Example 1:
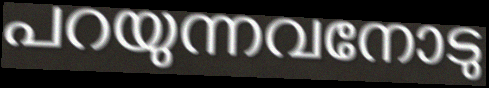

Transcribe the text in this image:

പറയുന്നവനോടു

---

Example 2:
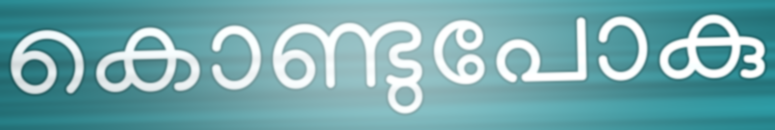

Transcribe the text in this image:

കൊണ്ടുപോകു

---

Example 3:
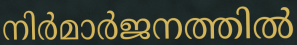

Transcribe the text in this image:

നിർമാർജനത്തിൽ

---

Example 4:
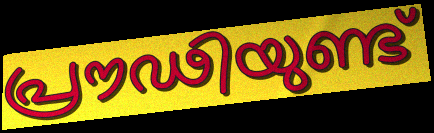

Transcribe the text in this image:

പ്രൗഢിയുണ്ട്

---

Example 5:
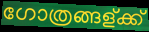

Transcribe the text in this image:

ഗോത്രങ്ങള്ക്ക്